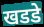
खडडे